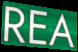
REA